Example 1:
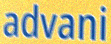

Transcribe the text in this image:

advani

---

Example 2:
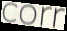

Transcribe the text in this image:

corr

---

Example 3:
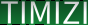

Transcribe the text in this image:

TIMIZI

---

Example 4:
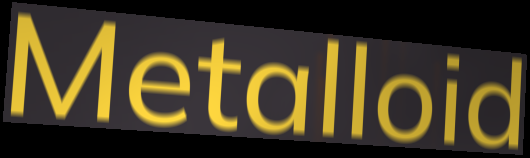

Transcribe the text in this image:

Metalloid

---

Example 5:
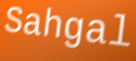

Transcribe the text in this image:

Sahgal